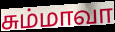
சும்மாவா